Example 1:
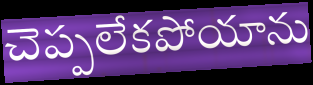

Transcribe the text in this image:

చెప్పలేకపోయాను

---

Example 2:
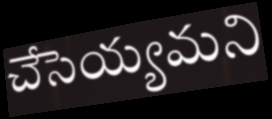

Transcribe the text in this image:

చేసెయ్యమని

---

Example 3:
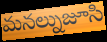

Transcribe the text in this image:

మనల్నుజూసి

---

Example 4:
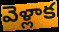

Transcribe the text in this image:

వెళ్లాక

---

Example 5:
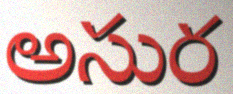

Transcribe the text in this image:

అసుర